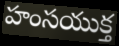
హంసయుక్త